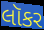
લૉકર